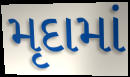
મૃદામાં